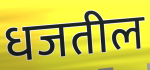
धजतील